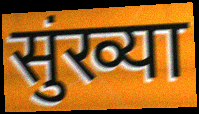
सुंख्या